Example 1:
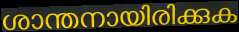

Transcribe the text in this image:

ശാന്തനായിരിക്കുക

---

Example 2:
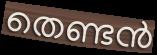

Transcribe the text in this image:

തെണ്ടൻ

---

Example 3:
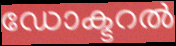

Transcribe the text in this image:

ഡോക്ടറൽ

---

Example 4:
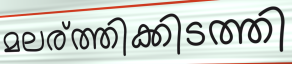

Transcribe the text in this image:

മലര്ത്തിക്കിടത്തി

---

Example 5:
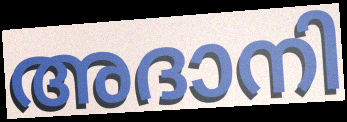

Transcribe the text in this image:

അദാനി